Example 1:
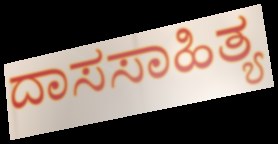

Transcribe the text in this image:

ದಾಸಸಾಹಿತ್ಯ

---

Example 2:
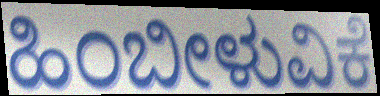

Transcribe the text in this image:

ಹಿಂಬೀಳುವಿಕೆ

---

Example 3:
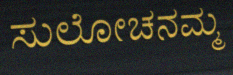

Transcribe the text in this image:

ಸುಲೋಚನಮ್ಮ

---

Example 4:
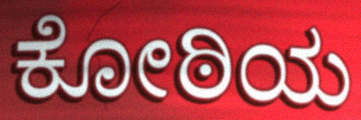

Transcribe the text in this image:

ಕೋಠಿಯ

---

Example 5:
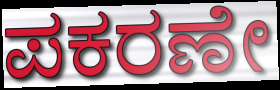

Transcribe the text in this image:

ಪಕರಣೇ